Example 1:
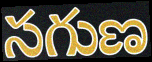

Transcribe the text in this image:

సగుణ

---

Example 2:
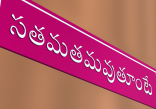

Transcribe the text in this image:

సతమతమవుతూంటే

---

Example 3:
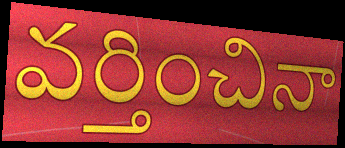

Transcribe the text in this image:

వర్తించినా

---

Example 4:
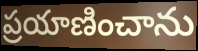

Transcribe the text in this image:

ప్రయాణించాను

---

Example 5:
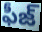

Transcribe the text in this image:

ఫీజ్